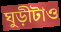
ঘুড়ীটাও